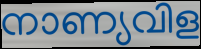
നാണ്യവിള